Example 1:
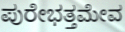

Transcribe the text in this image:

ಪುರೇಭತ್ತಮೇವ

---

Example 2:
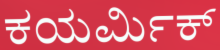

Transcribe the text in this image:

ಕಯರ್ಮಿಕ್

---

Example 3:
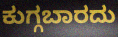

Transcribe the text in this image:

ಕುಗ್ಗಬಾರದು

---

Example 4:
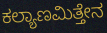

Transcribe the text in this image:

ಕಲ್ಯಾಣಮಿತ್ತೇನ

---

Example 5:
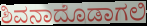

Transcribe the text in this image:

ಶಿವನಾದೊಡಾಗಲಿ